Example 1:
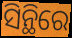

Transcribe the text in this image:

ସିନ୍ଥିରେ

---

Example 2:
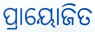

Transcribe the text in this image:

ପ୍ରାୟୋଜିତ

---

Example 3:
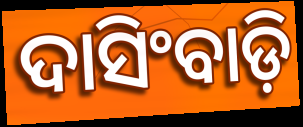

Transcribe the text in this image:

ଦାସିଂବାଡ଼ି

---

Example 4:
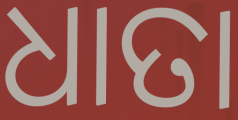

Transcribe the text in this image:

ଧାତା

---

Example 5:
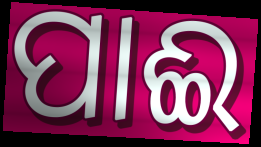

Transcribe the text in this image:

ପାଈ